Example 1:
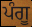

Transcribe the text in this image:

ਪੰਗੂ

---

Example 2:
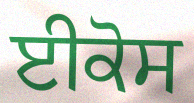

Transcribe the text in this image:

ਈਕੋਸ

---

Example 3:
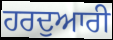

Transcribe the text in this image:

ਹਰਦੁਆਰੀ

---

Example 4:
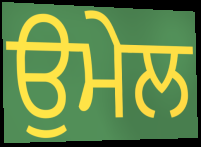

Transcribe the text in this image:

ਉਮੇਲ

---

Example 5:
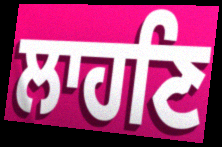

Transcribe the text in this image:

ਲਾਹਣਿ